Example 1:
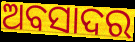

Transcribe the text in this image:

ଅବସାଦର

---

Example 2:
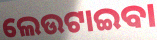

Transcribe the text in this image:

ଲେଉଟାଇବା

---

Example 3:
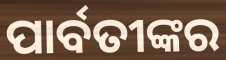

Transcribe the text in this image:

ପାର୍ବତୀଙ୍କର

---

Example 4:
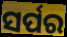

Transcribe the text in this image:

ସର୍ପର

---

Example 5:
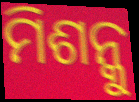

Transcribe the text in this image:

ମିଶନ୍କୁ